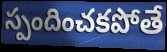
స్పందించకపోతే